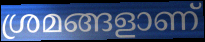
ശ്രമങ്ങളാണ്